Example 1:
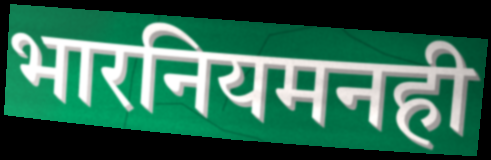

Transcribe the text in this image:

भारनियमनही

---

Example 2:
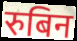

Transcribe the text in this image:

रुबिन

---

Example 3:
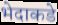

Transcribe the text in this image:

भेदाकडे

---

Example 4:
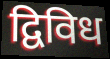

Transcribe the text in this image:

द्विविध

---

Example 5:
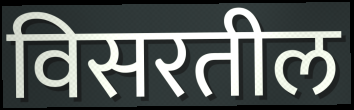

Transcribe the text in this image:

विसरतील